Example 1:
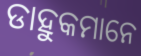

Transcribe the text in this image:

ଡାହୁକମାନେ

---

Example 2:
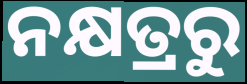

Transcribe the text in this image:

ନକ୍ଷତ୍ରରୁ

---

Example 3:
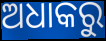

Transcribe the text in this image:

ଅଧାକରୁ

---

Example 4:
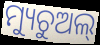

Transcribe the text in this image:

ମ୍ୟୁଚୁଅଲ୍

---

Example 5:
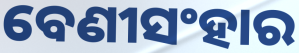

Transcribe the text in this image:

ବେଣୀସଂହାର